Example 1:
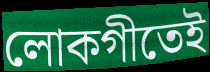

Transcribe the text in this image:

লোকগীতেই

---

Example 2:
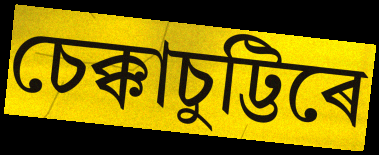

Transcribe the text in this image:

চেক্কাচুট্টিৰে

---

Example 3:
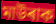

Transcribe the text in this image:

মাউৰাক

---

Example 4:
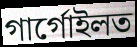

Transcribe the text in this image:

গাৰ্গোইলত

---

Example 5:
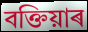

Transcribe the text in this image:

বক্তিয়াৰ